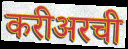
करीअरची